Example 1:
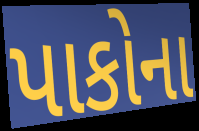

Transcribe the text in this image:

પાકોના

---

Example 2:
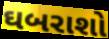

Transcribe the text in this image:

ઘબરાશો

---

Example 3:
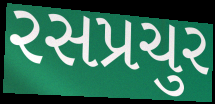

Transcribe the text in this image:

રસપ્રચુર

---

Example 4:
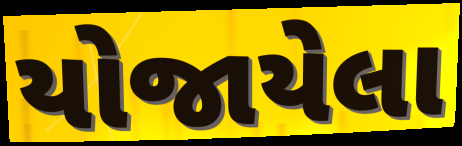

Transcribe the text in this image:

યોજાયેલા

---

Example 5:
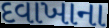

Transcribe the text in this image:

દવાખાના